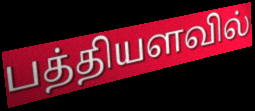
பத்தியளவில்